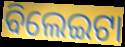
ବିଲେଇଟା